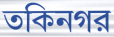
তকিনগর